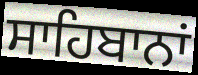
ਸਾਹਿਬਾਨਾਂ